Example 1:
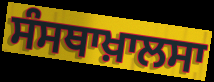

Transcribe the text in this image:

ਸੰਸਥਾਖ਼ਾਲਸਾ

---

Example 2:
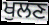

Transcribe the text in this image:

ਖੁਲਣ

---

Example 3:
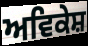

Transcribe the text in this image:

ਅਵਿਕੇਸ਼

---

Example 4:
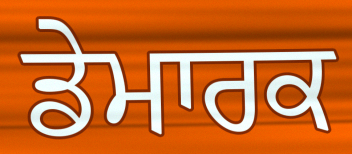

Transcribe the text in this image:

ਡੇਮਾਰਕ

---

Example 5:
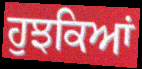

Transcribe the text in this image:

ਹੁਝਕਿਆਂ